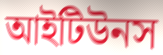
আইটিউনস